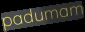
padumam